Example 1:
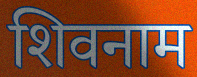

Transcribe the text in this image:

शिवनाम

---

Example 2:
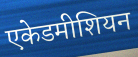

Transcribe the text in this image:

एकेडमीशियन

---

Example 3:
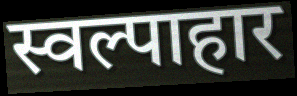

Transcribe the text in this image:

स्‍वल्‍पाहार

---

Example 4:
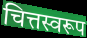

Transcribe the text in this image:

चित्तस्वरूप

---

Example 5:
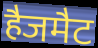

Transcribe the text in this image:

हैजमैट